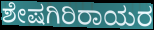
ಶೇಷಗಿರಿರಾಯರ